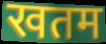
खतम